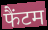
फैंटम